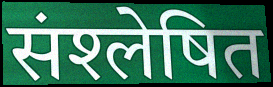
संश्लेषित